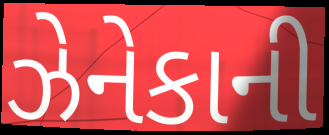
ઝેનેકાની